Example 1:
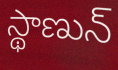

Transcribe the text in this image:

స్థాణున్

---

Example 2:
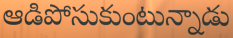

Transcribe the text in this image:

ఆడిపోసుకుంటున్నాడు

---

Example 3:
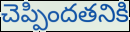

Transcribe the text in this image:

చెప్పిందతనికి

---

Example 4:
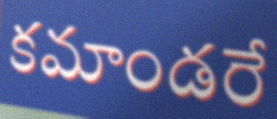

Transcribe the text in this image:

కమాండరే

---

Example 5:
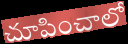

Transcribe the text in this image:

చూపించాలో